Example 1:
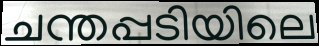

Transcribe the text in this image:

ചന്തപ്പടിയിലെ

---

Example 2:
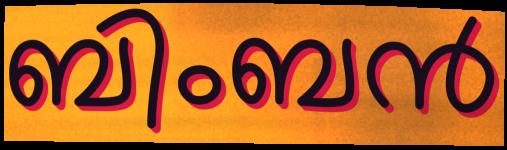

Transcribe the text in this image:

ബിംബൻ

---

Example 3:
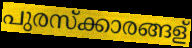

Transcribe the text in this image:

പുരസ്ക്കാരങ്ങള്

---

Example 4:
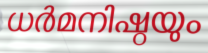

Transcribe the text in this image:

ധർമനിഷ്ഠയും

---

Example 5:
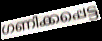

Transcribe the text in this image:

ഗണിക്കപ്പെട്ട